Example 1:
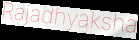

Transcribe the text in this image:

Rajadhyaksha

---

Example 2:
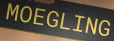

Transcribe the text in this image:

MOEGLING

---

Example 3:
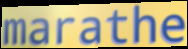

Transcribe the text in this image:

marathe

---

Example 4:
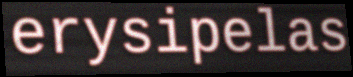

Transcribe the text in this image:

erysipelas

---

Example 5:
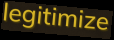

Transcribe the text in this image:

legitimize